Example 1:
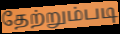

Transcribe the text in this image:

தேற்றும்படி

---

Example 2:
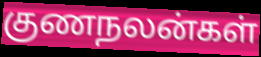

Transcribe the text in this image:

குணநலன்கள்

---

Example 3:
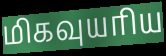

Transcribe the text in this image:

மிகவுயரிய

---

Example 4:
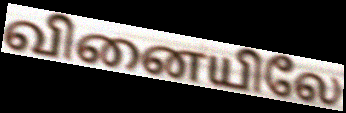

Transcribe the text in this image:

வினையிலே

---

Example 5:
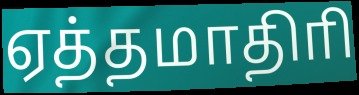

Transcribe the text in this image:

ஏத்தமாதிரி